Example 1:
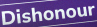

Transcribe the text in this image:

Dishonour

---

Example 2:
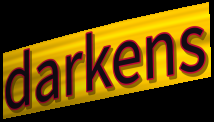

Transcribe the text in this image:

darkens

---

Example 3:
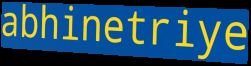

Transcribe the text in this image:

abhinetriye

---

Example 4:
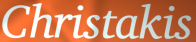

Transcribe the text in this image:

Christakis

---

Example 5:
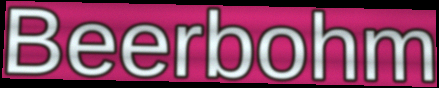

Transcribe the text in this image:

Beerbohm